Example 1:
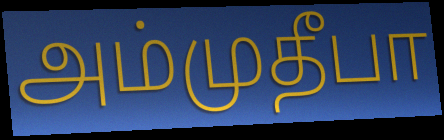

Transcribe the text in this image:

அம்முதீபா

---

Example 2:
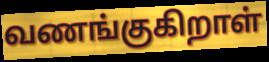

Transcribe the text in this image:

வணங்குகிறாள்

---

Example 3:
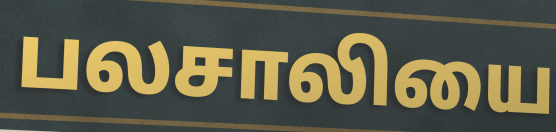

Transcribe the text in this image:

பலசாலியை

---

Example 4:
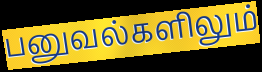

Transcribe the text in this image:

பனுவல்களிலும்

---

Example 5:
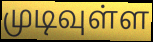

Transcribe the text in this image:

முடிவுள்ள